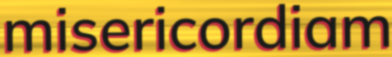
misericordiam